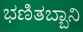
ಭಣಿತಬ್ಬಾನಿ